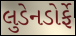
લુડેનડોર્ફે